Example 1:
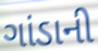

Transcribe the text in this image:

ગાંડાની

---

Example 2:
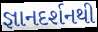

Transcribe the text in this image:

જ્ઞાનદર્શનથી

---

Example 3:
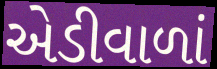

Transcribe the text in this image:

એડીવાળાં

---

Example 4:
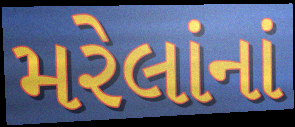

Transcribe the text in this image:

મરેલાંનાં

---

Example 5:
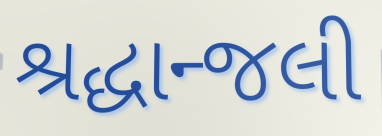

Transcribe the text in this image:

શ્રદ્ધાન્જલી